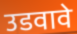
उडवावे